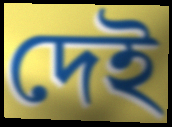
দেই